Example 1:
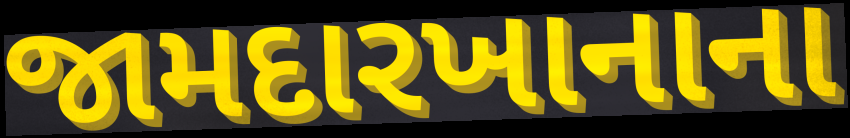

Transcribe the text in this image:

જામદારખાનાના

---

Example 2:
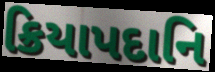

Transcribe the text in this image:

ક્રિયાપદાનિ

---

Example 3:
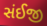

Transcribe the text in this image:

સંઈજી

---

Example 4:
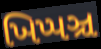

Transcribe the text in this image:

ખિપ્પઞ્ચ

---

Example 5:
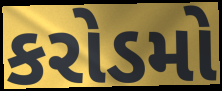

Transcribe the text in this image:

કરોડમો